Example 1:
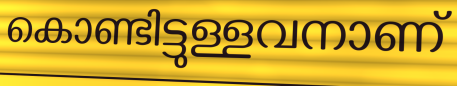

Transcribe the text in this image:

കൊണ്ടിട്ടുള്ളവനാണ്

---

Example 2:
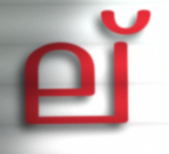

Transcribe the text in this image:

ല്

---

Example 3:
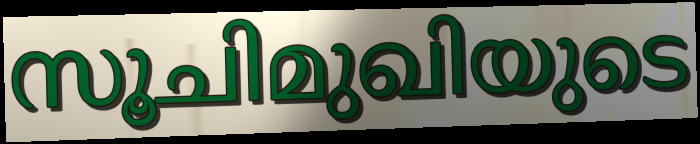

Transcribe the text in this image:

സൂചിമുഖിയുടെ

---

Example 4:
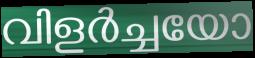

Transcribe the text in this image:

വിളർച്ചയോ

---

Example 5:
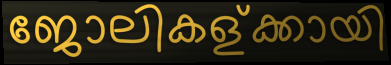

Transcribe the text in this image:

ജോലികള്ക്കായി